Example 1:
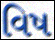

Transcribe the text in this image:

વિષ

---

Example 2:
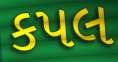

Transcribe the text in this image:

કપલ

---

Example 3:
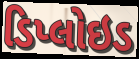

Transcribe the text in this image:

ડિપ્લોઇડ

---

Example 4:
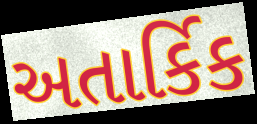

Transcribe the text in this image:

અતાર્કિક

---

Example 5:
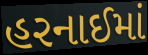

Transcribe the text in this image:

હરનાઈમાં